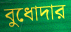
বুধোদার